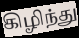
கிழிந்து